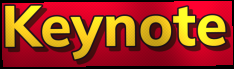
Keynote